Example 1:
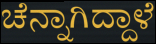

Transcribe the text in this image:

ಚೆನ್ನಾಗಿದ್ದಾಳೆ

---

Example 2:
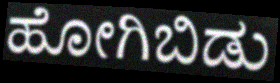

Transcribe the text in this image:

ಹೋಗಿಬಿಡು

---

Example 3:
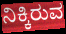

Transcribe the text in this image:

ನಿಕ್ಕಿರುವ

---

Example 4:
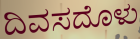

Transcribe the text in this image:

ದಿವಸದೊಳು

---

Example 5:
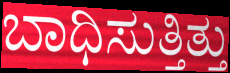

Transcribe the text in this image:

ಬಾಧಿಸುತ್ತಿತ್ತು